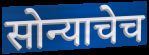
सोन्याचेच